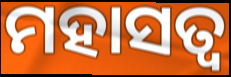
ମହାସତ୍ୱ